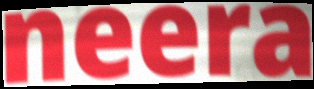
neera